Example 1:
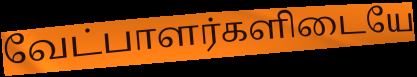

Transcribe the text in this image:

வேட்பாளர்களிடையே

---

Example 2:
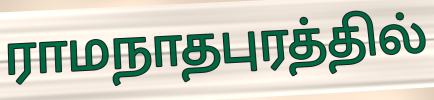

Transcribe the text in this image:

ராமநாதபுரத்தில்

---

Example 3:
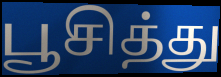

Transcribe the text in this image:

பூசித்து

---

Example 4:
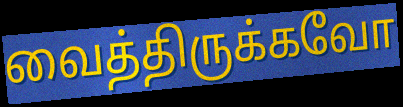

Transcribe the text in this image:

வைத்திருக்கவோ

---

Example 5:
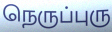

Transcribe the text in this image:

நெருப்புரு